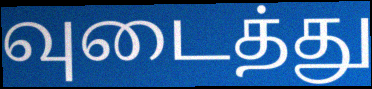
வுடைத்து